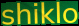
shiklo